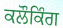
ਕਲੌਕਿੰਗ